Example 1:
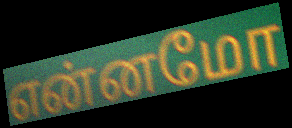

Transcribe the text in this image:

என்னமோ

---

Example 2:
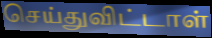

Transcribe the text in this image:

செய்துவிட்டாள்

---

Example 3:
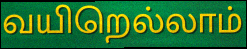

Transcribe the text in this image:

வயிறெல்லாம்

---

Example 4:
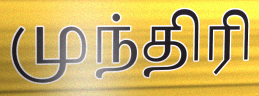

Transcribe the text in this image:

முந்திரி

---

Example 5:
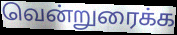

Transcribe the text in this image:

வென்றுரைக்க